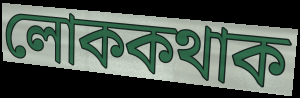
লোককথাক